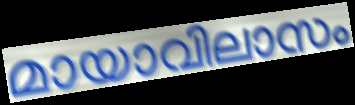
മായാവിലാസം